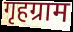
गृहग्राम